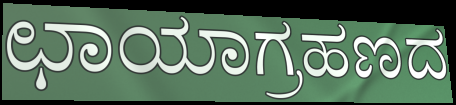
ಛಾಯಾಗ್ರಹಣದ